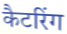
कैटरिंग